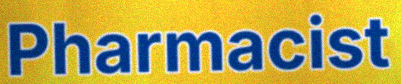
Pharmacist